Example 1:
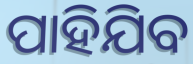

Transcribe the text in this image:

ପାହିଯିବ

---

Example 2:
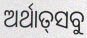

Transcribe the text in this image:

ଅର୍ଥାତ୍‌ସବୁ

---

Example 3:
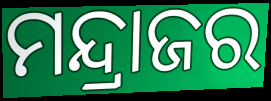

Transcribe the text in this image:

ମନ୍ଦ୍ରାଜର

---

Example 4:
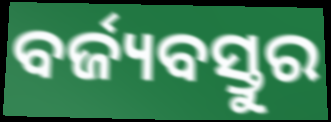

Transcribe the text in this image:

ବର୍ଜ୍ୟବସ୍ତୁର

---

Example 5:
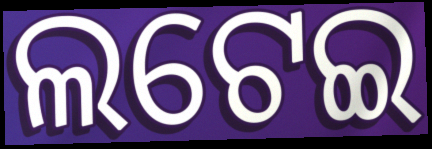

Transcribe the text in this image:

ଲଟେଇ